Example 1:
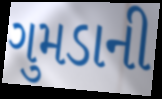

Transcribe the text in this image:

ગુમડાની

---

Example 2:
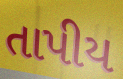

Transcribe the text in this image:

તાપીય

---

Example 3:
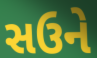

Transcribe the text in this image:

સઉને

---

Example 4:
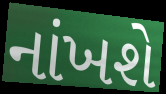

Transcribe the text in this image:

નાંખશે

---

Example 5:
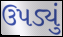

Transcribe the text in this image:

ઉપડ્યું